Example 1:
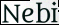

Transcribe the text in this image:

Nebi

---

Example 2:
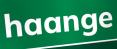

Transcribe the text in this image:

haange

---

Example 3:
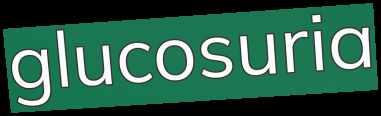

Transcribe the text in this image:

glucosuria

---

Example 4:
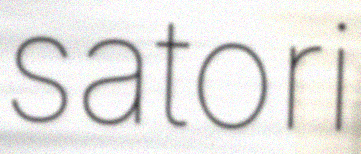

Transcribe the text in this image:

satori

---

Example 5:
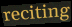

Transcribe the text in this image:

reciting